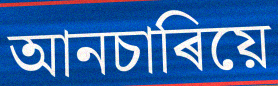
আনচাৰিয়ে